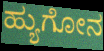
ಹ್ಯುಗೋನ